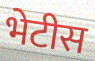
भेटीस